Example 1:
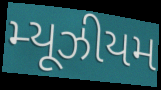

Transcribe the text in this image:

મ્યૂઝીયમ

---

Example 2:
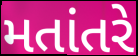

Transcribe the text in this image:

મતાંતરે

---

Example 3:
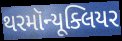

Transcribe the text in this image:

થરમૉન્યૂક્લિયર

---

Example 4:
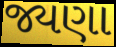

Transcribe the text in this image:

જ્યણા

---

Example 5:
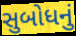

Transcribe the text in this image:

સુબોધનું